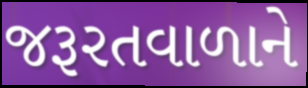
જરૂરતવાળાને